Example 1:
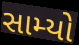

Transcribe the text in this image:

સામ્યો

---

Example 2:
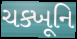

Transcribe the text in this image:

ચક્ખૂનિ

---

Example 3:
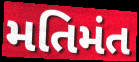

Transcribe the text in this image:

મતિમંત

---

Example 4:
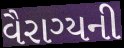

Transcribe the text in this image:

વૈરાગ્યની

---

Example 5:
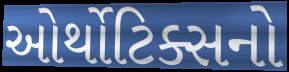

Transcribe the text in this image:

ઓર્થોટિક્સનો